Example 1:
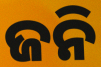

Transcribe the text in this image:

ଜନି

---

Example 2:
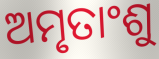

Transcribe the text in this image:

ଅମୃତାଂଶୁ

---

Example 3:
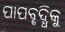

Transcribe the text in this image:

ପାପବୃଦ୍ଧିକୁ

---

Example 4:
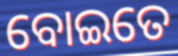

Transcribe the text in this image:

ବୋଇତେ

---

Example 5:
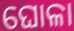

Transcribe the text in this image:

ଘୋଳା